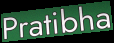
Pratibha